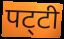
पट्‌टी